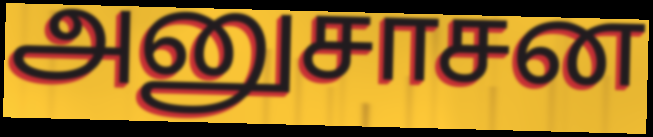
அனுசாசன